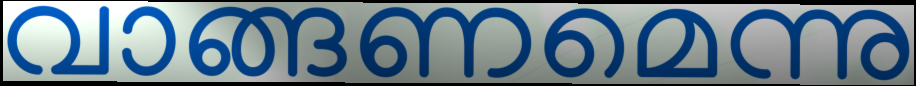
വാങ്ങണമെന്നു